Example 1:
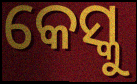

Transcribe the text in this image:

କେସ୍କୁ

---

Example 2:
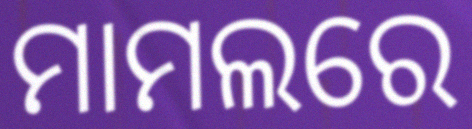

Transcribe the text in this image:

ମାମଲରେ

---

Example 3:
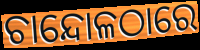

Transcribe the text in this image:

ଚାନ୍ଦୋଳଠାରେ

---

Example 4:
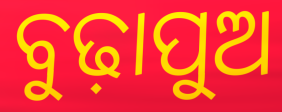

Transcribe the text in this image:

ବୁଢ଼ାପୁଅ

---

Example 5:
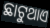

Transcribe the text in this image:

ଛାଟୁଥାଏ